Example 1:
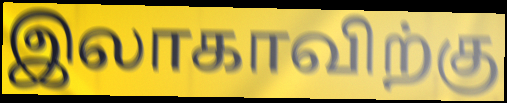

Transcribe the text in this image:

இலாகாவிற்கு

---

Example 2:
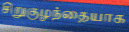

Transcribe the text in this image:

சிறுகுழந்தையாக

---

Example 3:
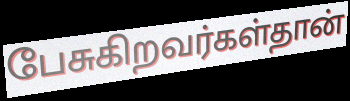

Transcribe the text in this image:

பேசுகிறவர்கள்தான்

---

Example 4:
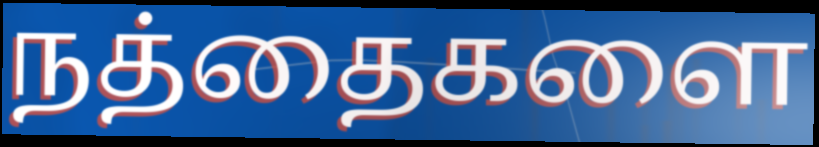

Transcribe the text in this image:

நத்தைகளை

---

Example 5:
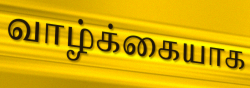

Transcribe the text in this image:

வாழ்க்கையாக